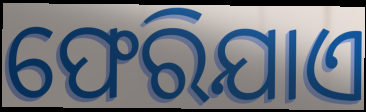
ଫେରିଯାଏ